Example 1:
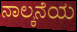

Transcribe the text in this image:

ನಾಲ್ಕನೆಯ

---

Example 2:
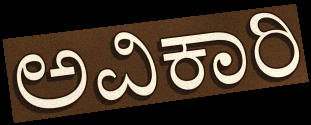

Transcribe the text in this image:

ಅವಿಕಾರಿ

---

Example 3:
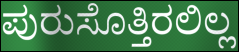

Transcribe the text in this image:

ಪುರುಸೊತ್ತಿರಲಿಲ್ಲ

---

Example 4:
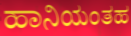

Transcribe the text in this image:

ಹಾನಿಯಂತಹ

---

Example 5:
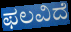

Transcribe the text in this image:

ಫಲವಿದೆ